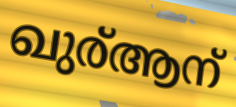
ഖുര്ആന്